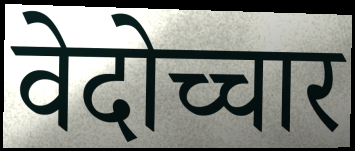
वेदोच्चार